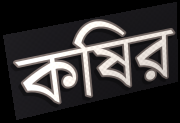
কষির